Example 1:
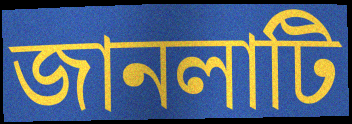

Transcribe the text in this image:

জানলাটি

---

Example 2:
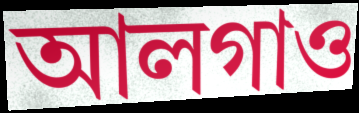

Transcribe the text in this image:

আলগাও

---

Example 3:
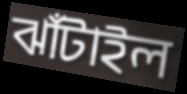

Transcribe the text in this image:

ঝাঁটাইল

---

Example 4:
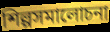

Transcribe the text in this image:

শিল্পসমালোচনা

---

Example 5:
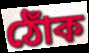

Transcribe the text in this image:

ঠোঁক